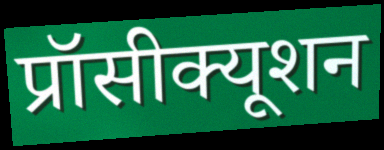
प्रॉसीक्यूशन